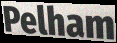
Pelham